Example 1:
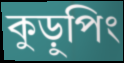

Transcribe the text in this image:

কুড়ুপিং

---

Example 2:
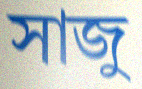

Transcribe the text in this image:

সাজু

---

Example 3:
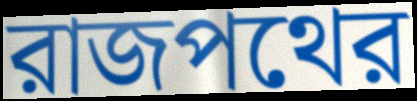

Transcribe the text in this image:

রাজপথের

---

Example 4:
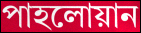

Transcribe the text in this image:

পাহলোয়ান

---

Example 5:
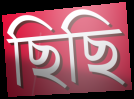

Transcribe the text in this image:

ছিছি